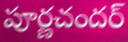
పూర్ణచందర్